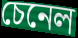
চেনেল